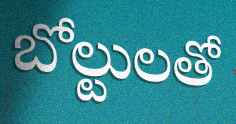
బోల్టులతో